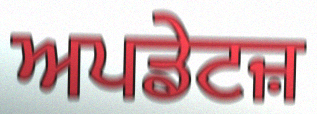
ਅਪਡੇਟਜ਼